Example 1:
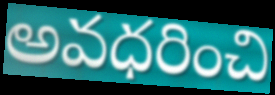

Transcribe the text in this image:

అవధరించి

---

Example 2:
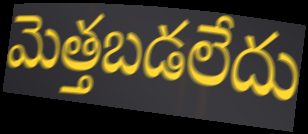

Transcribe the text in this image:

మెత్తబడలేదు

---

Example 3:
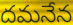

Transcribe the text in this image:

దమనేన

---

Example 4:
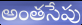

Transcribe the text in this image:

అంతసేపు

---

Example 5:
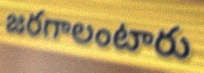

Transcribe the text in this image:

జరగాలంటారు